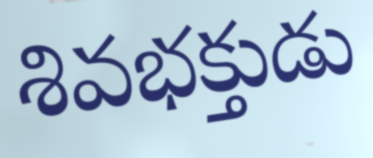
శివభక్తుడు